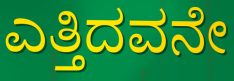
ಎತ್ತಿದವನೇ